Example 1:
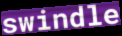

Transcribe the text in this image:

swindle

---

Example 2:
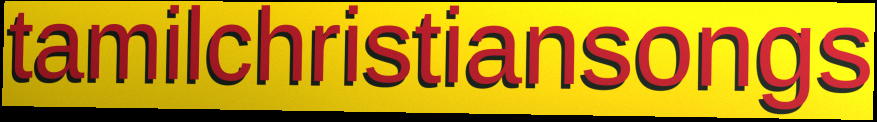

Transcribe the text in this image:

tamilchristiansongs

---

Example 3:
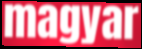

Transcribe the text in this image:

magyar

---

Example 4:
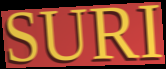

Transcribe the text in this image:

SURI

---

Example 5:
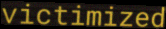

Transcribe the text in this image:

victimized